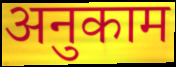
अनुकाम